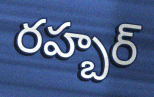
రహ్బర్